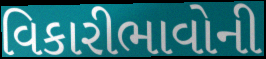
વિકારીભાવોની